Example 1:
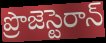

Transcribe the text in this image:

ప్రొజెస్టెరాన్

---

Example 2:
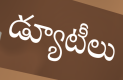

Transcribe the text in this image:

డ్యూటీలు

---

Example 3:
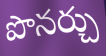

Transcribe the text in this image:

పొనర్చు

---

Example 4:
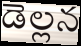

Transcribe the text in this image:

డెల్లన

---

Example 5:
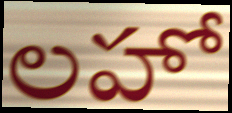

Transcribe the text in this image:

లహో